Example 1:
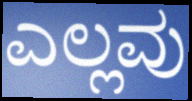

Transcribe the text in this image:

ಎಲ್ಲವು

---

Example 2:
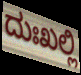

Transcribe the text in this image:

ದುಃಖಲ್ಲಿ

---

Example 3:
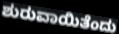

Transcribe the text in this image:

ಶುರುವಾಯಿತೆಂದು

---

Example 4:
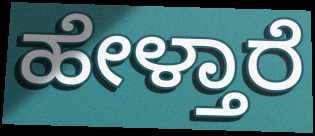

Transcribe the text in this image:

ಹೇಳ್ತಾರೆ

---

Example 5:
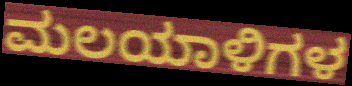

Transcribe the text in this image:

ಮಲಯಾಳಿಗಳ